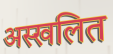
अस्खलित